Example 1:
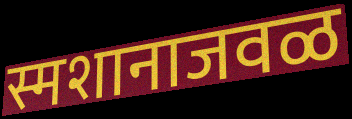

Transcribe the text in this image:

स्मशानाजवळ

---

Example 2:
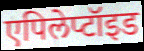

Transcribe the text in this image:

एपिलेप्टॉइड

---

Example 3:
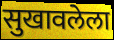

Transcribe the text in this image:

सुखावलेला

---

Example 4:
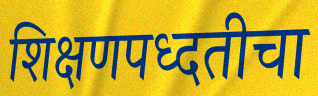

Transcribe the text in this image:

शिक्षणपध्दतीचा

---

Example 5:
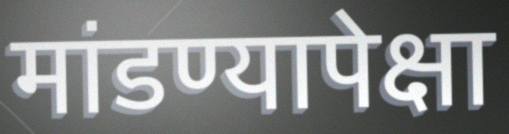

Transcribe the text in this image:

मांडण्यापेक्षा